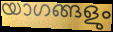
യാഗങ്ങളും